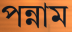
পন্নাম